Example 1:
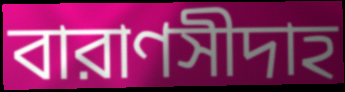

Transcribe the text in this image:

বারাণসীদাহ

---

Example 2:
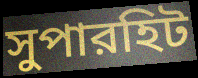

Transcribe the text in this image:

সুপারহিট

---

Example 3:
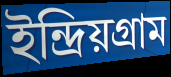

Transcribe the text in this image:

ইন্দ্রিয়গ্রাম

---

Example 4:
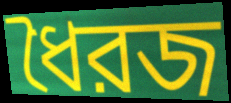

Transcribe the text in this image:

ধৈরজ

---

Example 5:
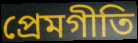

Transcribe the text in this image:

প্রেমগীতি